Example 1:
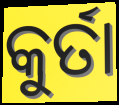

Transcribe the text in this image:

କୁର୍ତା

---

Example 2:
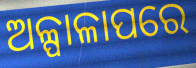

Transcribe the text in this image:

ଅଳ୍ପାଳାପରେ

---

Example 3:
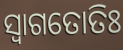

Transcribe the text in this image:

ସ୍ଵାଗତୋତିଃ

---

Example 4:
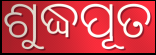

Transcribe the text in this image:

ଶୁଦ୍ଧପୂତ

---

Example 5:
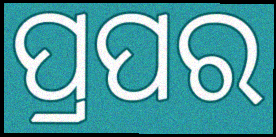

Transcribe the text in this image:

ପ୍ରପର